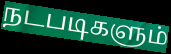
நடபடிகளும்